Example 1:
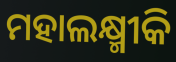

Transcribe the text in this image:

ମହାଲକ୍ଷ୍ମୀକି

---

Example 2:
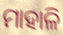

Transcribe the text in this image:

ମାହାଳି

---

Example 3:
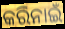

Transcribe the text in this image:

କରିନାଇଁ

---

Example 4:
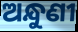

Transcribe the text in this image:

ଅନ୍ଧୁଣୀ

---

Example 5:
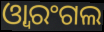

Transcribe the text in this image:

ଓ୍ୱାରଂଗଲ